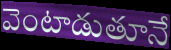
వెంటాడుతూనే